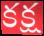
కక్ష